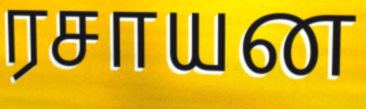
ரசாயன